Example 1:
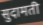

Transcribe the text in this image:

सुदामती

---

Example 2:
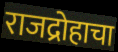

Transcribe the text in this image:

राजद्रोहाचा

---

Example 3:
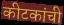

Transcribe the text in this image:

कीटकांची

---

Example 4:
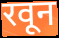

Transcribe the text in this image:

रवून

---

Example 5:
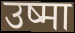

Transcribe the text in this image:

उष्मा